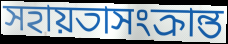
সহায়তাসংক্রান্ত